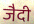
जैदी